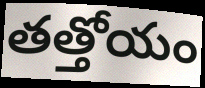
తత్తోయం